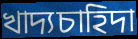
খাদ্যচাহিদা